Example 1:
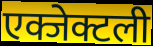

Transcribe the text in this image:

एक्जेक्टली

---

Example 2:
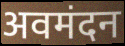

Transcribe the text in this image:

अवमंदन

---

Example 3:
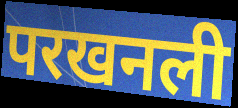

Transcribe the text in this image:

परखनली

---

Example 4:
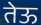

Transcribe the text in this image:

तेऊ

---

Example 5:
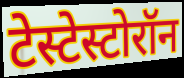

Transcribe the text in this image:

टेस्टेस्टोरॉन